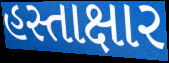
હસ્તાક્ષાર